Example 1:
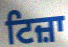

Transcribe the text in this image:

ਟਿਜ਼ਾ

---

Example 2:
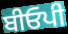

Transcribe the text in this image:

ਬੀਓਪੀ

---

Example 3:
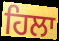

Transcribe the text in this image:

ਹਿਲਾ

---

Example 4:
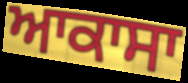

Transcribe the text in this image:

ਆਕਾਸਾ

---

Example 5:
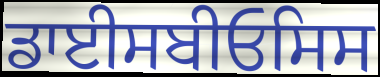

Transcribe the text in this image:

ਡਾਈਸਬੀਓਸਿਸ